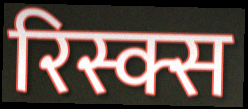
रिस्क्स